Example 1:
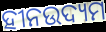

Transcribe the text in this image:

ହୀନଉଦ୍ୟମ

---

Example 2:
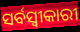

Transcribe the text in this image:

ସର୍ବସ୍ଵୀକାରୀ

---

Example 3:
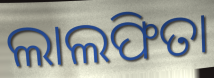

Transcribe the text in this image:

ଲାଲଫିତା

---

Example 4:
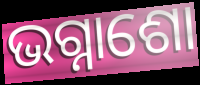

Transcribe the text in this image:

ଭଗ୍ନାଶୋ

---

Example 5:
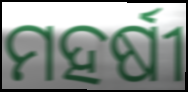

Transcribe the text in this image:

ମହର୍ଷୀ